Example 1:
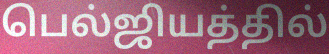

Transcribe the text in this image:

பெல்ஜியத்தில்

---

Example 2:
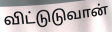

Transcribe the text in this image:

விட்டுடுவான்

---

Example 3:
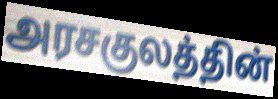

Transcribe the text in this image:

அரசகுலத்தின்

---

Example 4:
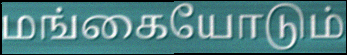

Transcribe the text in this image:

மங்கையோடும்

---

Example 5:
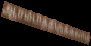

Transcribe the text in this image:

ஆரம்பித்திருக்கலாம்